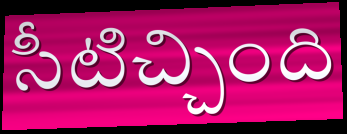
సీటిచ్చింది